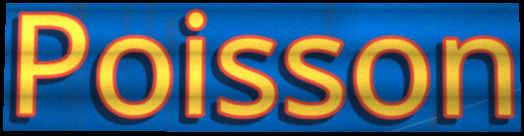
Poisson